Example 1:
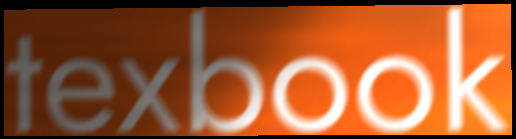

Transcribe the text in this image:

texbook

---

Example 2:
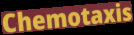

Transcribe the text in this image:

Chemotaxis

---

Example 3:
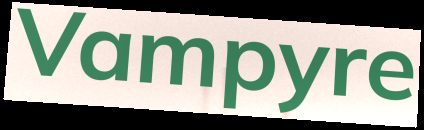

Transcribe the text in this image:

Vampyre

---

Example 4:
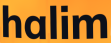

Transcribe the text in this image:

halim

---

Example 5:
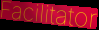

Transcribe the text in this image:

Facilitator